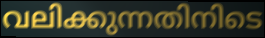
വലിക്കുന്നതിനിടെ